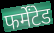
फर्मेंटेड